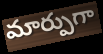
మార్పుగా